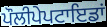
ਪੌਲੀਪੇਪਟਾਇਡਾਂ